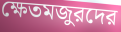
ক্ষেতমজুরদের